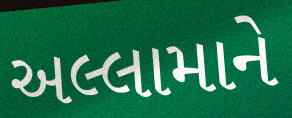
અલ્લામાને